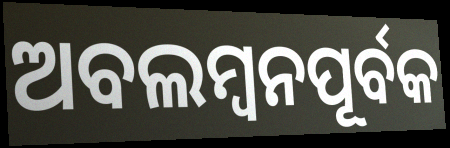
ଅବଲମ୍ୱନପୂର୍ବକ